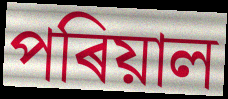
পৰিয়াল